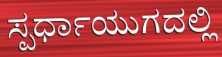
ಸ್ಪರ್ಧಾಯುಗದಲ್ಲಿ